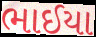
ભાઈયા